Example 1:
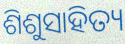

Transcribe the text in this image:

ଶିଶୁସାହିତ୍ୟ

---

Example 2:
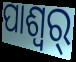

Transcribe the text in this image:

ପାଶ୍ୱର୍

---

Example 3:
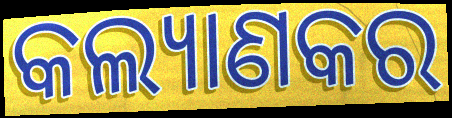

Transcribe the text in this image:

କଲ୍ୟାଣକର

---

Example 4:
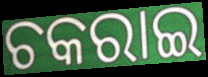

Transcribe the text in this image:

ଚକରାଇ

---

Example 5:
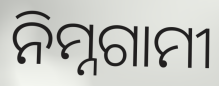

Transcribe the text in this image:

ନିମ୍ନଗାମୀ